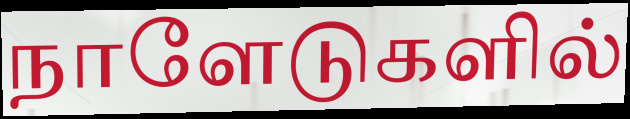
நாளேடுகளில்